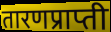
तारणप्राप्ती